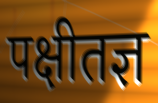
पक्षीतज्ञ